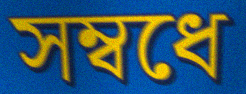
সম্বধে